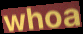
whoa